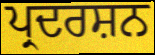
ਪ੍ਰਦਰਸ਼ਨ